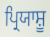
ਪ੍ਰਿਯਾਸ਼ੂ